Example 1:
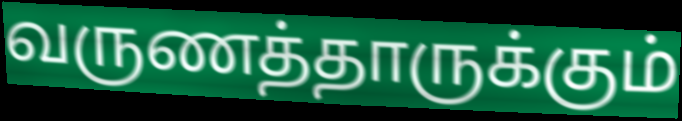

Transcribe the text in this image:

வருணத்தாருக்கும்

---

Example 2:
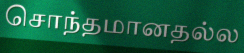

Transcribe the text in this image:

சொந்தமானதல்ல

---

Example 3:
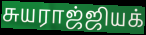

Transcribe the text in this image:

சுயராஜ்ஜியக்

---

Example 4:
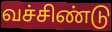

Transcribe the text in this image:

வச்சிண்டு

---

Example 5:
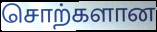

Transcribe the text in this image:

சொற்களான